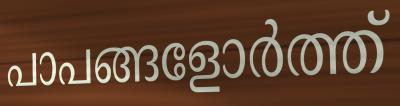
പാപങ്ങളോർത്ത്